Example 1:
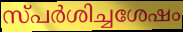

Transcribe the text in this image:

സ്പർശിച്ചശേഷം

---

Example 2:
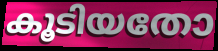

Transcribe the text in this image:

കൂടിയതോ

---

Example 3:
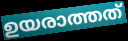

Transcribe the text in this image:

ഉയരാത്തത്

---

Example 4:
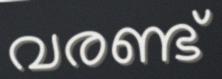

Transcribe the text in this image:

വരണ്ട്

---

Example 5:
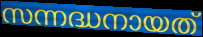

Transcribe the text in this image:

സന്നദ്ധനായത്